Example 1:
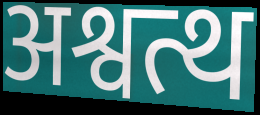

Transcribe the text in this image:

अश्वत्थ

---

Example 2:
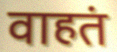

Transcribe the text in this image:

वाहतं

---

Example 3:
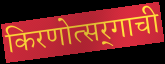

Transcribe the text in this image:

किरणोत्सर्गाची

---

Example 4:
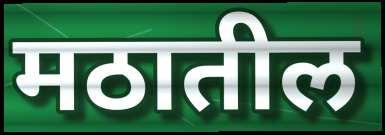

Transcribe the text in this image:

मठातील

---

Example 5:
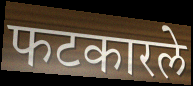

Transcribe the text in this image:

फटकारले